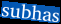
subhas